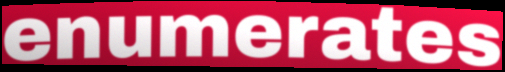
enumerates